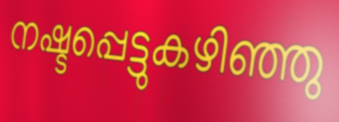
നഷ്ടപ്പെട്ടുകഴിഞ്ഞു